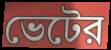
ভেটের